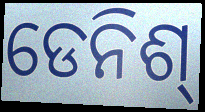
ଡେନିଶ୍